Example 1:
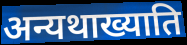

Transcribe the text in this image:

अन्यथाख्याति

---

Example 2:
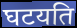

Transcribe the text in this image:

घटयति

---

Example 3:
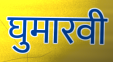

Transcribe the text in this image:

घुमारवी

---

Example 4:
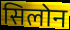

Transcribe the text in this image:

सिलोन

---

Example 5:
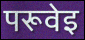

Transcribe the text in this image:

परूवेइ